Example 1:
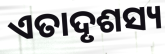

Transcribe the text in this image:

ଏତାଦୃଶସ୍ୟ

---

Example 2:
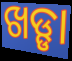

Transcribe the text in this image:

ଖଡ୍ଡା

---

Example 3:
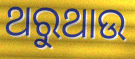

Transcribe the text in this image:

ଥରୁଥାଉ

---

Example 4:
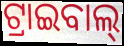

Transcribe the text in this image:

ଟ୍ରାଇବାଲ୍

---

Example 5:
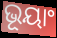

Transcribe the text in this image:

ଭୂୟାଂ